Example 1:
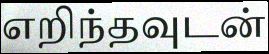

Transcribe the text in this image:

எறிந்தவுடன்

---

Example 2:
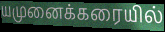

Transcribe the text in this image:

யமுனைக்கரையில்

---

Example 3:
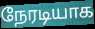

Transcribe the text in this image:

நேரடியாக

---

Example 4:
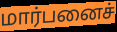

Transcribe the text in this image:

மார்பனைச்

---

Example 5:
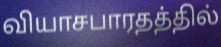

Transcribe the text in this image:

வியாசபாரதத்தில்